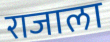
राजाला